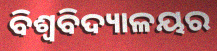
ବିଶ୍ୱବିଦ୍ୟାଳୟର